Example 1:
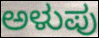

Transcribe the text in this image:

ಅಳುಪು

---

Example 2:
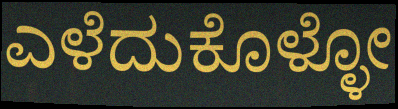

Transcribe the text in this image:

ಎಳೆದುಕೊಳ್ಳೋ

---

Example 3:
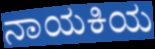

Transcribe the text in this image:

ನಾಯಕಿಯ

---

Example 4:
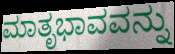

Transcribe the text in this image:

ಮಾತೃಭಾವವನ್ನು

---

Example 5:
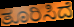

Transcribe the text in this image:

ತೂರಿಸಿದೆ